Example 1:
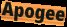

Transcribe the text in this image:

Apogee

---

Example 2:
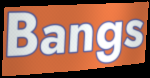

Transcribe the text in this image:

Bangs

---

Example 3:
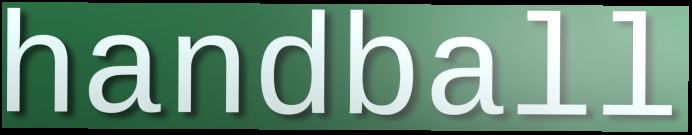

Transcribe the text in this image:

handball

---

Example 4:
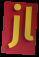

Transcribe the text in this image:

jl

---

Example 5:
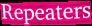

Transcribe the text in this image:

Repeaters